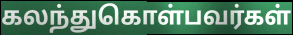
கலந்துகொள்பவர்கள்